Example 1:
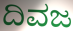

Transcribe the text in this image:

ದಿವಜ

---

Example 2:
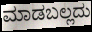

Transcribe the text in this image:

ಮಾಡಬಲ್ಲದು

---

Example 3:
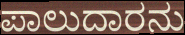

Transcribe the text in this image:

ಪಾಲುದಾರನು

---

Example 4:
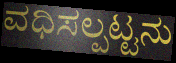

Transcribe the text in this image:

ವಧಿಸಲ್ಪಟ್ಟನು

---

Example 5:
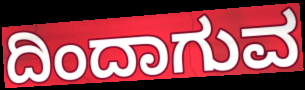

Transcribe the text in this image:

ದಿಂದಾಗುವ